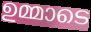
ഉമ്മാടെ